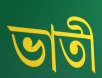
ভাতী